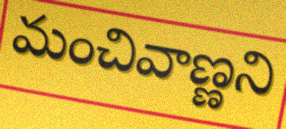
మంచివాణ్ణని